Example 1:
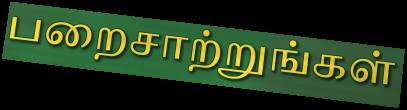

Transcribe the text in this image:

பறைசாற்றுங்கள்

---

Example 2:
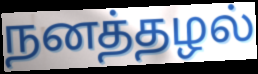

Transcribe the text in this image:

நனத்தழல்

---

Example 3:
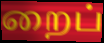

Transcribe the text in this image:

றைப்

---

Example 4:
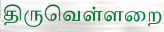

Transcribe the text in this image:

திருவெள்ளறை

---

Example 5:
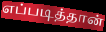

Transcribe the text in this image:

எப்படித்தான்